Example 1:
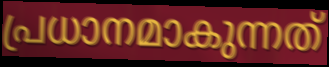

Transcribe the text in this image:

പ്രധാനമാകുന്നത്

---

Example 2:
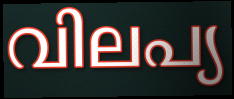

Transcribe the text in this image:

വിലപ്യ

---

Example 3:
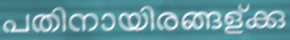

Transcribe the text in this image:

പതിനായിരങ്ങള്ക്കു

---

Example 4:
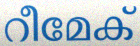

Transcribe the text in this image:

റീമേക്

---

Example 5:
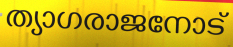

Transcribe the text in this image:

ത്യാഗരാജനോട്